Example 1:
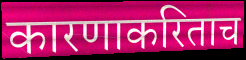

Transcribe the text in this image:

कारणाकरिताच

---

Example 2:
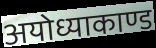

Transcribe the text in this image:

अयोध्याकाण्ड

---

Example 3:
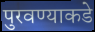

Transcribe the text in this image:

पुरवण्याकडे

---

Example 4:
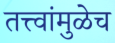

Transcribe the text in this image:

तत्त्वांमुळेच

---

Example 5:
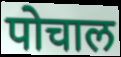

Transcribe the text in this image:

पोचाल